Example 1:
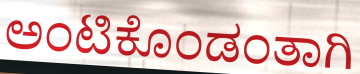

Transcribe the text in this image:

ಅಂಟಿಕೊಂಡಂತಾಗಿ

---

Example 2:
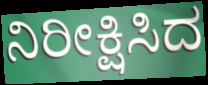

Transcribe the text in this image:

ನಿರೀಕ್ಷಿಸಿದ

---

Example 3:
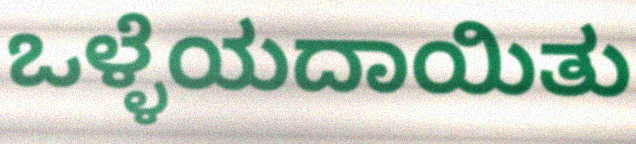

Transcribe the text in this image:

ಒಳ್ಳೆಯದಾಯಿತು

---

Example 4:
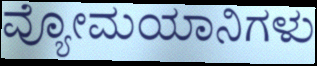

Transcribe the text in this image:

ವ್ಯೋಮಯಾನಿಗಳು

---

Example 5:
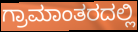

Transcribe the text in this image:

ಗ್ರಾಮಾಂತರದಲ್ಲಿ